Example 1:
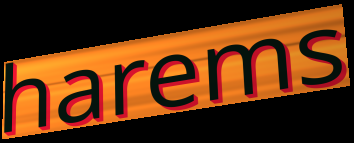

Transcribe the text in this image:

harems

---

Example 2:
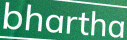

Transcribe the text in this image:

bhartha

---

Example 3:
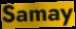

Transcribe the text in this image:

Samay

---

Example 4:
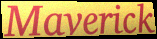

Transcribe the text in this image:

Maverick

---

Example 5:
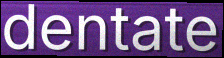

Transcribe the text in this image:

dentate